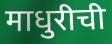
माधुरीची